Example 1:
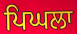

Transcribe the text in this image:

ਪਿਘਲਾ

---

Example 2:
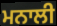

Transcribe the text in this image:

ਮਨਾਲੀ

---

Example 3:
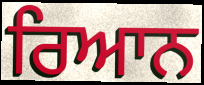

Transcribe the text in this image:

ਰਿਆਨ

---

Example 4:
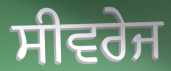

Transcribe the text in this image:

ਸੀਵਰੇਜ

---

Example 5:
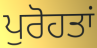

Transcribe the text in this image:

ਪੁਰੋਹਤਾਂ